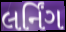
લર્નિંગ